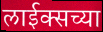
लाईक्सच्या